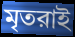
মৃতরাই